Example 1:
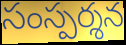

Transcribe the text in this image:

సంస్పర్శన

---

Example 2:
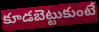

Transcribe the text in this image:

కూడబెట్టుకుంటే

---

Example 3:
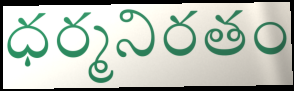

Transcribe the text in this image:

ధర్మనిరతం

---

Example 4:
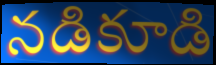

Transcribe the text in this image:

నడికూడి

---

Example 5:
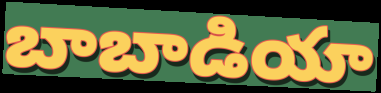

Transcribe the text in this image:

బాబాడియా